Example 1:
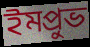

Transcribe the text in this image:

ইমপ্রুভ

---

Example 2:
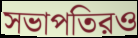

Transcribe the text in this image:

সভাপতিরও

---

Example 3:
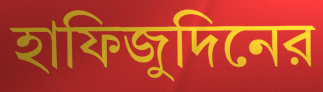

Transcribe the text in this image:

হাফিজুদিনের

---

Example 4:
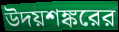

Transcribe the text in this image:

উদয়শঙ্করের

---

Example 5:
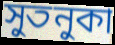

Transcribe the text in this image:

সুতনুকা